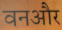
वनऔर